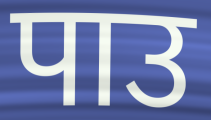
पाउ